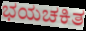
ಭಯಚಕಿತ